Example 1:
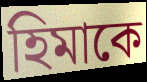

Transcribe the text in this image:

হিমাকে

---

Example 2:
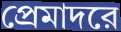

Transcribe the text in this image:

প্রেমাদরে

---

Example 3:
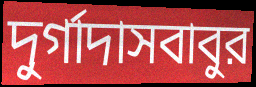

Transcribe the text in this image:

দুর্গাদাসবাবুর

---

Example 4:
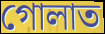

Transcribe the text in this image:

গোলাত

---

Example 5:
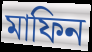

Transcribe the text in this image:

মাফিন